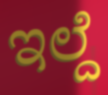
ಇಲ್ದೆ